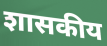
शासकीय